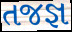
તજજ્ઞ